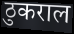
ठुकराल